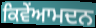
ਕਿਵੇਂਆਮਦਨ